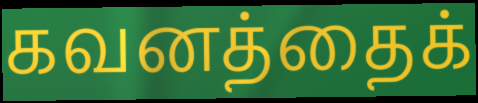
கவனத்தைக்